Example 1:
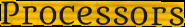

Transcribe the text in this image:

Processors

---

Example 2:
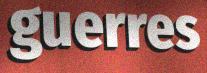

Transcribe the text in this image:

guerres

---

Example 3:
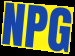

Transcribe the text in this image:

NPG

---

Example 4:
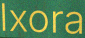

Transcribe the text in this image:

Ixora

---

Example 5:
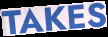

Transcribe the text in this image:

TAKES